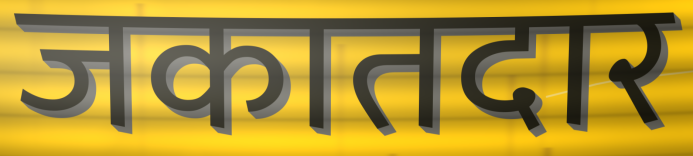
जकातदार